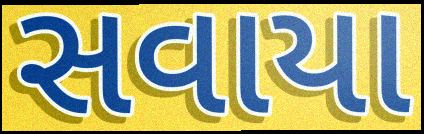
સવાયા